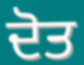
ਦੋਤ